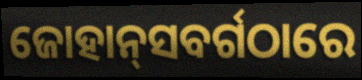
ଜୋହାନ୍‌ସବର୍ଗଠାରେ